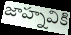
జాహ్నవికి